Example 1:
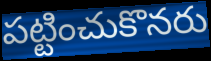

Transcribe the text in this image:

పట్టించుకొనరు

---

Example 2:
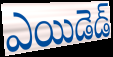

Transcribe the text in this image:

ఎయిడెడ్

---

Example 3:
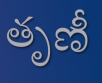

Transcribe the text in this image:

తృణీ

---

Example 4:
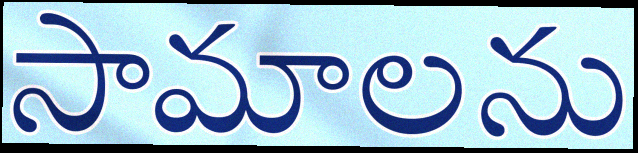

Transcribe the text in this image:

సామాలను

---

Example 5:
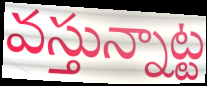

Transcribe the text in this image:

వస్తున్నాట్ట